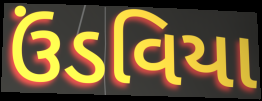
ઉંડવિયા